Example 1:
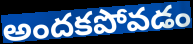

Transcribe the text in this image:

అందకపోవడం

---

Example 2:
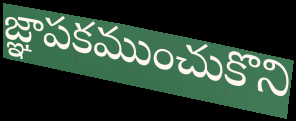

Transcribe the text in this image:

జ్ఞాపకముంచుకొని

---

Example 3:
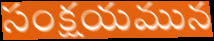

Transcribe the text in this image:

సంక్షయమున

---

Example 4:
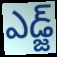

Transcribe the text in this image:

ఎడ్జ్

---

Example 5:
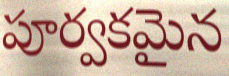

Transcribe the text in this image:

పూర్వకమైన